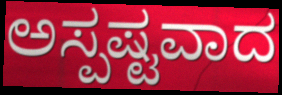
ಅಸ್ಪಷ್ಟವಾದ